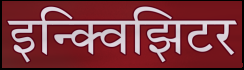
इन्क्विझिटर